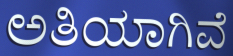
ಅತಿಯಾಗಿವೆ